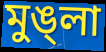
মুঙ্লা